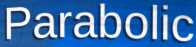
Parabolic